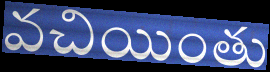
వచియింతు